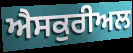
ਐਸਕੁਰੀਅਲ